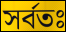
সর্বতঃ